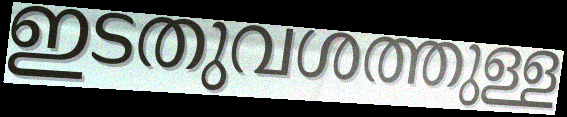
ഇടതുവശത്തുള്ള